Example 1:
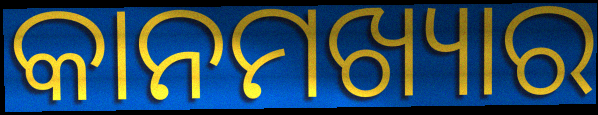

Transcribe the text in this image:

କାନମଖ୍ୟାର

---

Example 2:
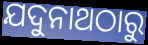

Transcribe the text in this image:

ଯଦୁନାଥଠାରୁ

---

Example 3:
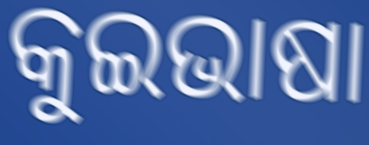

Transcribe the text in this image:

କୁଇଭାଷା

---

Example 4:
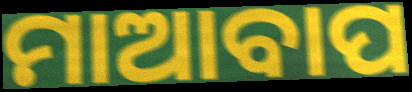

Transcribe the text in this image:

ମାଆବାପ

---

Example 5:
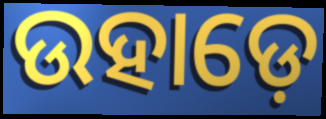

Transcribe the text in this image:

ଉହାଡ଼େ